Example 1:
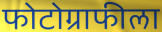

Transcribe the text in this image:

फोटोग्राफीला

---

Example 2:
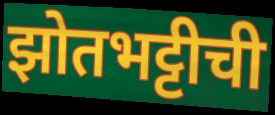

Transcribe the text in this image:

झोतभट्टीची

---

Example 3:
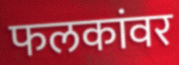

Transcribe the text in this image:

फलकांवर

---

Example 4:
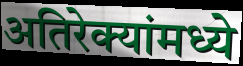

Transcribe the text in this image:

अतिरेक्यांमध्ये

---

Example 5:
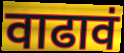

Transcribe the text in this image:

वाढावं